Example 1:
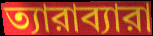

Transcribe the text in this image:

ত্যারাব্যারা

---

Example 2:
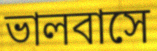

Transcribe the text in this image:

ভালবাসে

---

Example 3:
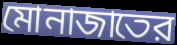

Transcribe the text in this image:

মোনাজাতের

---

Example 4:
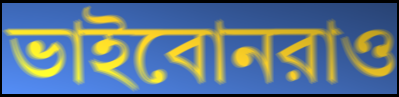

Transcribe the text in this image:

ভাইবোনরাও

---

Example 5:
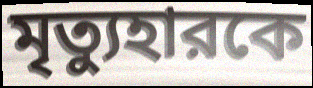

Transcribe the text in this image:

মৃত্যুহারকে